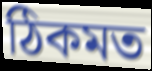
ঠিকমত